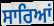
ਸਾਰਿਆਂ